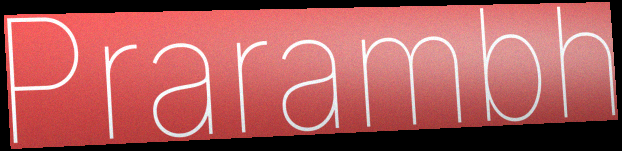
Prarambh